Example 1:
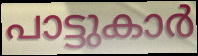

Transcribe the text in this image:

പാട്ടുകാർ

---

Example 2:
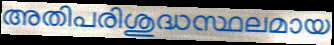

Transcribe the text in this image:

അതിപരിശുദ്ധസ്ഥലമായ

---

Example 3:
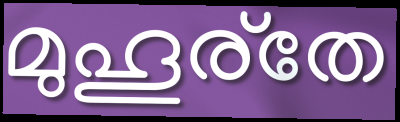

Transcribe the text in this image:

മുഹൂര്തേ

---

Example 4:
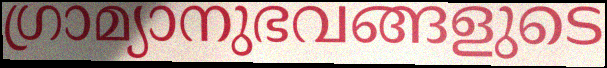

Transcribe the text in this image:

ഗ്രാമ്യാനുഭവങ്ങളുടെ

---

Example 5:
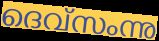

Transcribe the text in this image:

ദെവ്സംന്നു